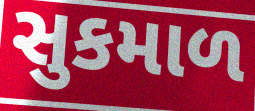
સુકમાળ